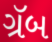
ગ્રૅબ